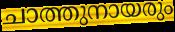
ചാത്തുനായരും